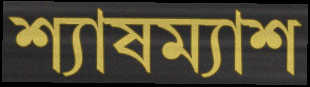
শ্যাষম্যাশ